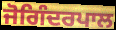
ਜੋਗਿੰਦਰਪਾਲ